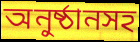
অনুষ্ঠানসহ